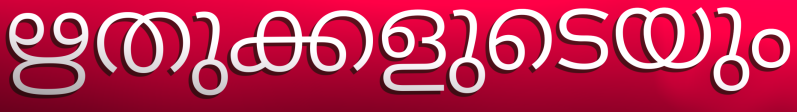
ഋതുക്കളുടെയും